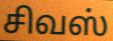
சிவஸ்